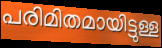
പരിമിതമായിട്ടുള്ള